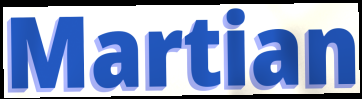
Martian